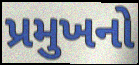
પ્રમુખનો